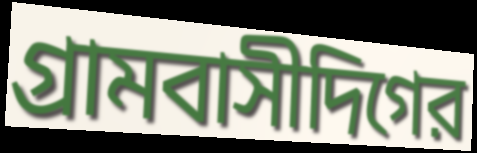
গ্রামবাসীদিগের